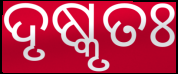
ଦୃଷ୍କୃତଃ